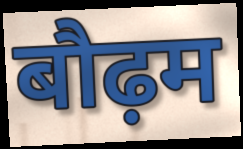
बौढ़म